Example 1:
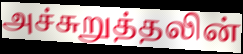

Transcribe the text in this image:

அச்சுறுத்தலின்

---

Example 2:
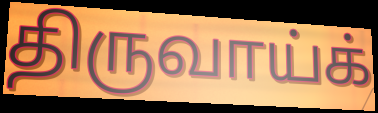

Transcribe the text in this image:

திருவாய்க்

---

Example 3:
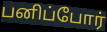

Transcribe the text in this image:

பனிப்போர்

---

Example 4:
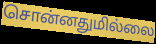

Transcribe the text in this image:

சொன்னதுமில்லை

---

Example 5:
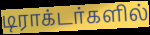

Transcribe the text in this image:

டிராக்டர்களில்